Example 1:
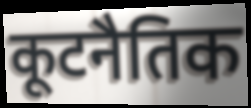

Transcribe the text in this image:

कूटनैतिक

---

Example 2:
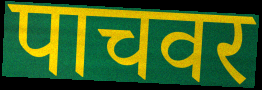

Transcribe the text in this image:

पाचवर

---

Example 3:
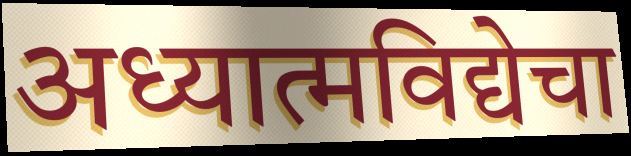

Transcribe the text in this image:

अध्यात्मविद्येचा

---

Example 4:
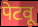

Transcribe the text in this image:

पेटवू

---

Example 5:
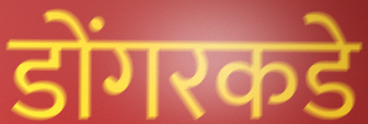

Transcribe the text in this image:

डोंगरकडे